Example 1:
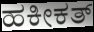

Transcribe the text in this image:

ಹಕೀಕತ್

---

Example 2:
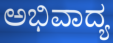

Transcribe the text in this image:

ಅಭಿವಾದ್ಯ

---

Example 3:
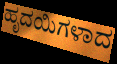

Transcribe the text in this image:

ಹೃದಯಿಗಳಾದ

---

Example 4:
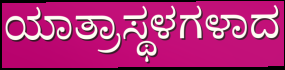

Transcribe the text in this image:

ಯಾತ್ರಾಸ್ಥಳಗಳಾದ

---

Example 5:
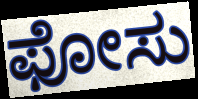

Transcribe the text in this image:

ಫೋಸು